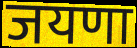
जयणा